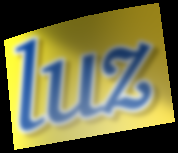
luz